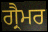
ਗ੍ਰੈਮਰ